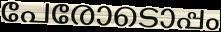
പേരോടൊപ്പം